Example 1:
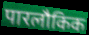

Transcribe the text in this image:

पारलौकिक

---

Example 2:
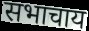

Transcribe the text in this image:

सभाचाय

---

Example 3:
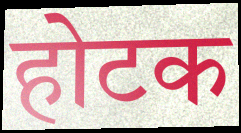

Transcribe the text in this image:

होटक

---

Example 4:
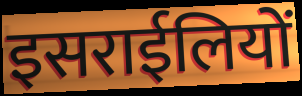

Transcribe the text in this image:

इसराईलियों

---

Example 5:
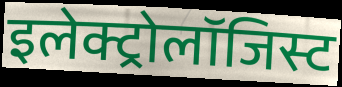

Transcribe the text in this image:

इलेक्ट्रोलॉजिस्ट